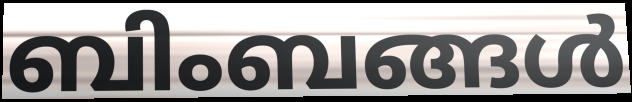
ബിംബങ്ങൾ